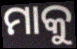
ମାକୁ